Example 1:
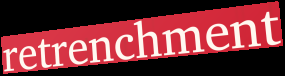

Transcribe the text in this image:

retrenchment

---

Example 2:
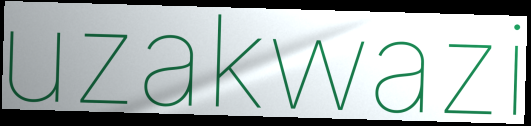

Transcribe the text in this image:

uzakwazi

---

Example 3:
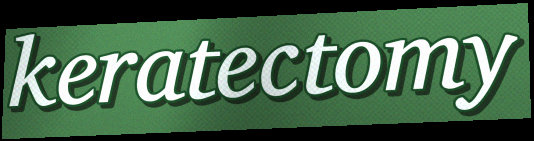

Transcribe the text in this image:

keratectomy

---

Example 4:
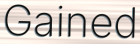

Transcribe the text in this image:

Gained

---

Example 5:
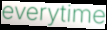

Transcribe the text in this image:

everytime